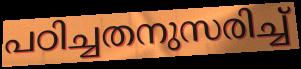
പഠിച്ചതനുസരിച്ച്